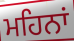
ਮਹਿਨਾਂ